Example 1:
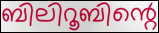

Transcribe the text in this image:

ബിലിറൂബിന്റെ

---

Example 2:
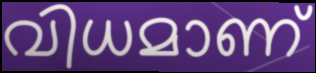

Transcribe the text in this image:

വിധമാണ്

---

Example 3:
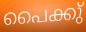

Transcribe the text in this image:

പൈക്കു്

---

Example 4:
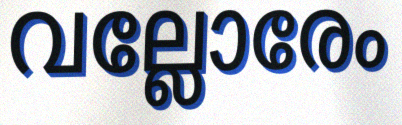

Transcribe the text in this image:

വല്ലോരേം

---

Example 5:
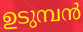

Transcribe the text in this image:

ഉടുമ്പൻ